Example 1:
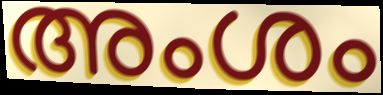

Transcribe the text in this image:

അംശം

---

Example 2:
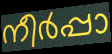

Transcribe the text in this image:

നീർപ്പാ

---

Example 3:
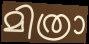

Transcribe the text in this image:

മിത്രാ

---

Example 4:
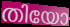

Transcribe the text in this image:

തിയോ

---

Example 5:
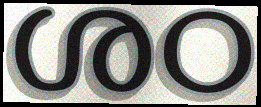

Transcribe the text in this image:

ശഠ